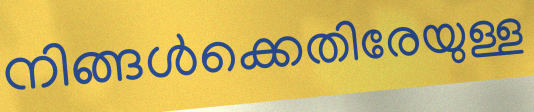
നിങ്ങൾക്കെതിരേയുള്ള